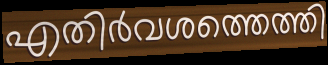
എതിർവശത്തെത്തി